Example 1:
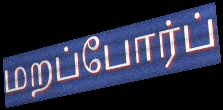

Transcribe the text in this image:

மறப்போர்ப்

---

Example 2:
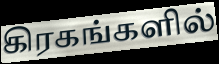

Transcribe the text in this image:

கிரகங்களில்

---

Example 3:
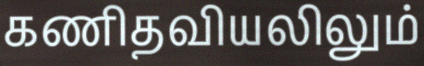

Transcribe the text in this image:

கணிதவியலிலும்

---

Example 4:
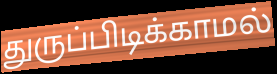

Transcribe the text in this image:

துருப்பிடிக்காமல்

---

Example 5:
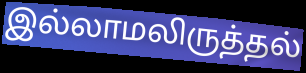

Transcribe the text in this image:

இல்லாமலிருத்தல்